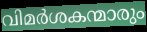
വിമർശകന്മാരും